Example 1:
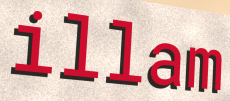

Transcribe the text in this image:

illam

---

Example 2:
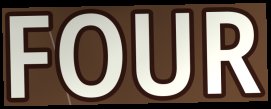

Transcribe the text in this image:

FOUR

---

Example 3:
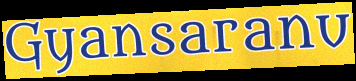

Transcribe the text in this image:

Gyansaranu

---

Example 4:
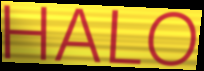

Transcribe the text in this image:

HALO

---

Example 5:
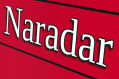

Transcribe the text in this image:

Naradar